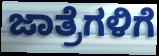
ಜಾತ್ರೆಗಳಿಗೆ